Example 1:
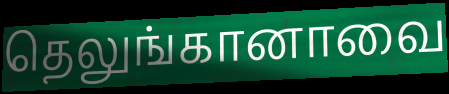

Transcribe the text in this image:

தெலுங்கானாவை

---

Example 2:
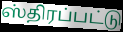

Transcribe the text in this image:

ஸ்திரப்பட்டு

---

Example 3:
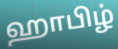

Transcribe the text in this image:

ஹாபிழ்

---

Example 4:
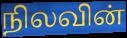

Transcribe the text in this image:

நிலவின்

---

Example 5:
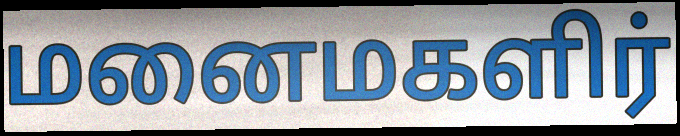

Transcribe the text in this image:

மனைமகளிர்